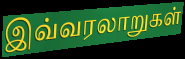
இவ்வரலாறுகள்